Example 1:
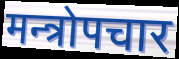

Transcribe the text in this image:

मन्त्रोपचार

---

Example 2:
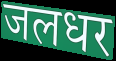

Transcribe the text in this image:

जलधर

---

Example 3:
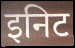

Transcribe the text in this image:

इनिट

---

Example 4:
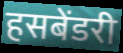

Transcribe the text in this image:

हसबेंडरी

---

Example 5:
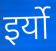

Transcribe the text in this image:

इर्यो